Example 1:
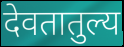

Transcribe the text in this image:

देवतातुल्य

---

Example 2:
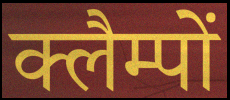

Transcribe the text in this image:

क्लैम्पों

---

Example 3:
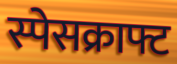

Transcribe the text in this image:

स्‍पेसक्राफ्ट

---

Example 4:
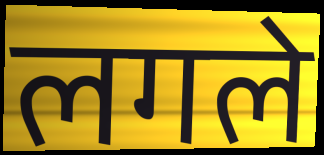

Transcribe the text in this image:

लगले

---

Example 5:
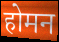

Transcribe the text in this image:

होमन